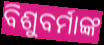
ବିଶୁବର୍ମାଙ୍କ